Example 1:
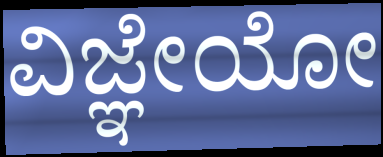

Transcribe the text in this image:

ವಿಜ್ಞೇಯೋ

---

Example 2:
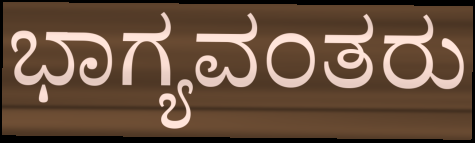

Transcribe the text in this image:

ಭಾಗ್ಯವಂತರು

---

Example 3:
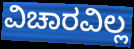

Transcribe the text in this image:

ವಿಚಾರವಿಲ್ಲ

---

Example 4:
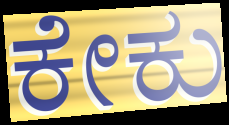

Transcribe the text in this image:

ಕೇಕು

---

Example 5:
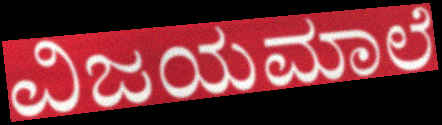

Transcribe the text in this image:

ವಿಜಯಮಾಲೆ